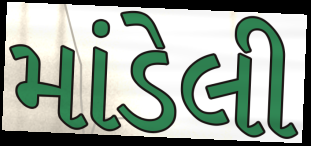
માંડેલી